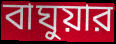
বাঘুয়ার